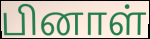
பினாள்